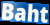
Baht